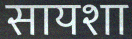
सायशा